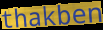
thakben